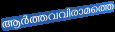
ആർത്തവവിരാമത്തെ